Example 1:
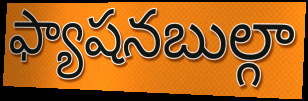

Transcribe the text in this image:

ఫ్యాషనబుల్గా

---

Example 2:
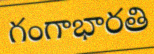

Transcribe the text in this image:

గంగాభారతి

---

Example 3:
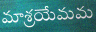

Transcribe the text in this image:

మాశ్రయేమమ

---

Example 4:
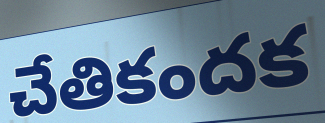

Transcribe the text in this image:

చేతికందక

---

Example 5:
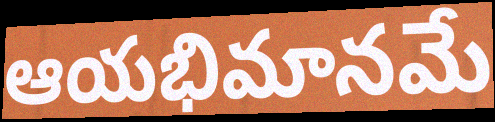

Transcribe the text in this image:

ఆయభిమానమే